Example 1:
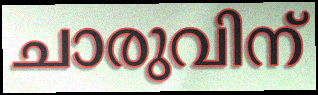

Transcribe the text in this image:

ചാരുവിന്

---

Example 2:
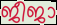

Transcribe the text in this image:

ജീജാ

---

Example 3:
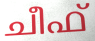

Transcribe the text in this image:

ചീഫ്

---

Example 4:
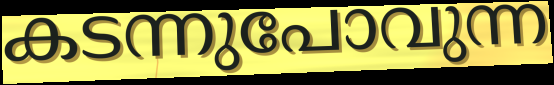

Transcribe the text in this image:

കടന്നുപോവുന്ന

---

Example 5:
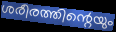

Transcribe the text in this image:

ശരീരത്തിന്റെയും